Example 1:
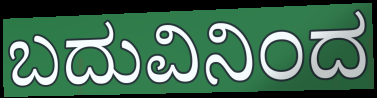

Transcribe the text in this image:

ಬದುವಿನಿಂದ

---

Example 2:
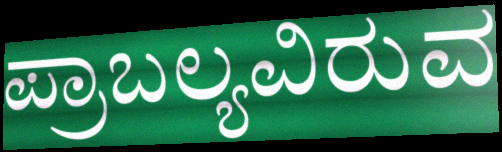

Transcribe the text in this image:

ಪ್ರಾಬಲ್ಯವಿರುವ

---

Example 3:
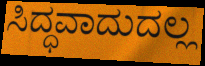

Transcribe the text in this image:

ಸಿದ್ಧವಾದುದಲ್ಲ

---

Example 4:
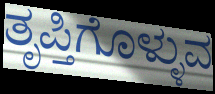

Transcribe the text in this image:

ತೃಪ್ತಿಗೊಳ್ಳುವ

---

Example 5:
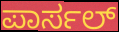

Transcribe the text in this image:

ಪಾರ್ಸಲ್